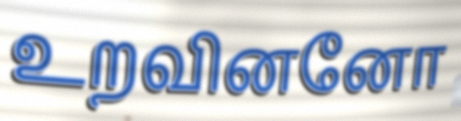
உறவினனோ